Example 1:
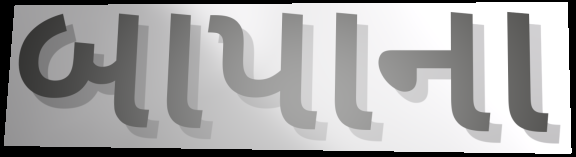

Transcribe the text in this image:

બાપાના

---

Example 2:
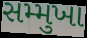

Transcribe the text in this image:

સમ્મુખા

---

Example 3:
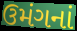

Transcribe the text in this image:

ઉમંગનાં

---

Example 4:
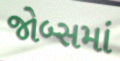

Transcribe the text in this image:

જોબ્સમાં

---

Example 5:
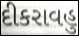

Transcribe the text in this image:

દીકરાવહુ